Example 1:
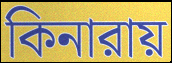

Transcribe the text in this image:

কিনারায়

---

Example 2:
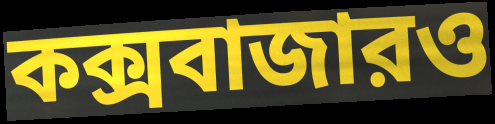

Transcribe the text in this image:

কক্সবাজারও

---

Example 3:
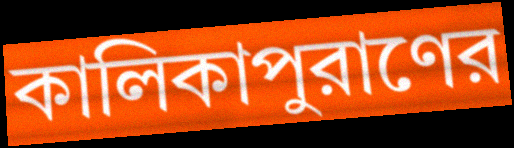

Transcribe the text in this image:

কালিকাপুরাণের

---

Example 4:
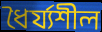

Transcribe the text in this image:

ধৈর্য্যশীল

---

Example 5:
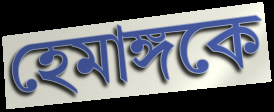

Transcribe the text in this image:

হেমাঙ্গকে